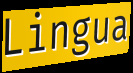
Lingua